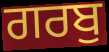
ਗਰਬੁ